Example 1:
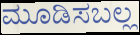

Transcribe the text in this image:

ಮೂಡಿಸಬಲ್ಲ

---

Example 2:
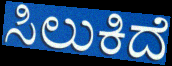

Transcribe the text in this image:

ಸಿಲುಕಿದೆ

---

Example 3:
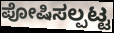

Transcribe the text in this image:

ಪೋಷಿಸಲ್ಪಟ್ಟ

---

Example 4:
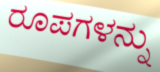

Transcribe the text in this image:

ರೂಪಗಳನ್ನು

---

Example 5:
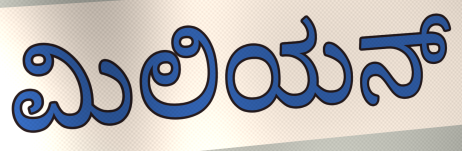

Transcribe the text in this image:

ಮಿಲಿಯನ್